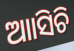
ଆାସିଚି